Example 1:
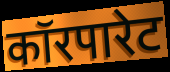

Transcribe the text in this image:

कॉरपारेट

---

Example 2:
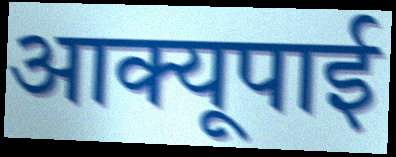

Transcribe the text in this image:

आक्यूपाई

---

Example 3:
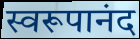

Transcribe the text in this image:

स्वरूपानंद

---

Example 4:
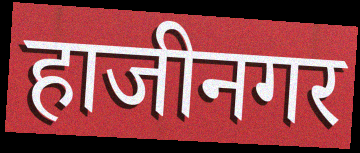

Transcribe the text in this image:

हाजीनगर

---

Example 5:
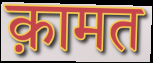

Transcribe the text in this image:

क़ामत